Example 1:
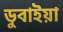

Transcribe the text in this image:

ডুবাইয়া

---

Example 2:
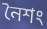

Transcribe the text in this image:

নৈশং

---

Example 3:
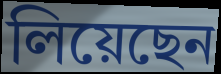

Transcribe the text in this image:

লিয়েছেন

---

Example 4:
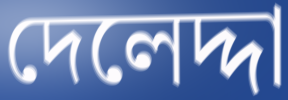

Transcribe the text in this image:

দেলেদ্দা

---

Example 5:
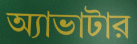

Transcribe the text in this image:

অ্যাভাটার